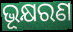
ଭୂକ୍ଷରଣ